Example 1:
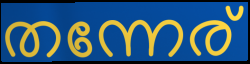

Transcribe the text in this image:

തന്നേര്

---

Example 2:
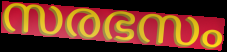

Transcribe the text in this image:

സരഭസം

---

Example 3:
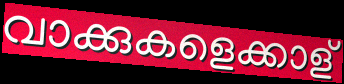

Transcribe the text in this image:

വാക്കുകളെക്കാള്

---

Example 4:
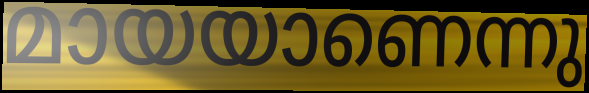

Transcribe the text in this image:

മായയാണെന്നു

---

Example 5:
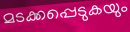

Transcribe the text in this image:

മടക്കപ്പെടുകയും